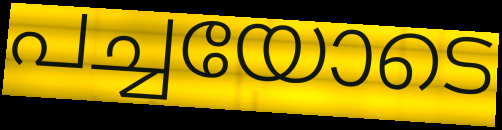
പച്ചയോടെ